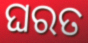
ଘରତ